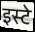
इस्टे